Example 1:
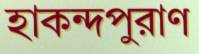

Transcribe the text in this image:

হাকন্দপুরাণ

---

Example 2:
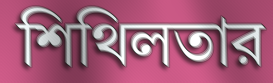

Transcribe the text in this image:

শিথিলতার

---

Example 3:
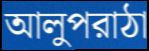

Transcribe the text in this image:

আলুপরাঠা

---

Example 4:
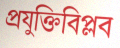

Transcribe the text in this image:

প্রযুক্তিবিপ্লব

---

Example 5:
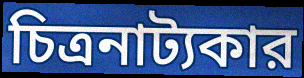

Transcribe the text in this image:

চিত্রনাট্যকার